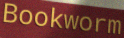
Bookworm